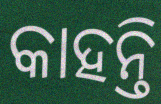
କାହନ୍ତି